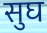
सुघ